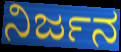
ನಿರ್ಜನ